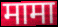
मामा